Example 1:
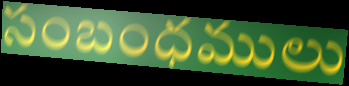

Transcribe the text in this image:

సంబంధములు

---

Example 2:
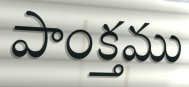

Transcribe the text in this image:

పాంక్తము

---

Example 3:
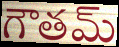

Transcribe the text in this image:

గౌతమ్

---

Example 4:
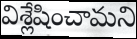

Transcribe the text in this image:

విశ్లేషించామని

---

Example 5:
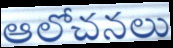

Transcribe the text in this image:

ఆలోచనలు